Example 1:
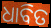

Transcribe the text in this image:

ଧାବିତ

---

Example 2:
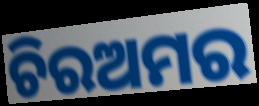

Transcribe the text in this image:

ଚିରଅମର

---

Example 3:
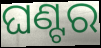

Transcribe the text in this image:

ଘଣ୍ଟର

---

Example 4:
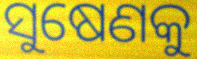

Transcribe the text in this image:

ସୁଷେଣକୁ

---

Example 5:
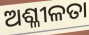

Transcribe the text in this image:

ଅଶ୍ଳୀଳତା